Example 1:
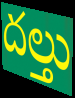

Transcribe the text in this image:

దల్తు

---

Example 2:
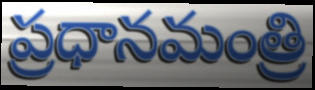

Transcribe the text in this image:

ప్రధానమంత్రి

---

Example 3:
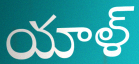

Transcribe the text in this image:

యాళ్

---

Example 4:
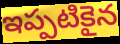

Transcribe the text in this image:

ఇప్పటికైన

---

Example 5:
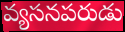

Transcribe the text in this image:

వ్యసనపరుడు